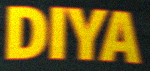
DIYA